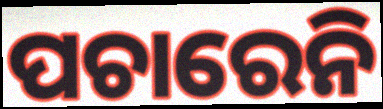
ପଚାରେନି